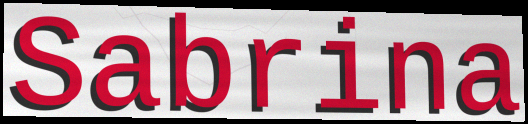
Sabrina